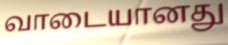
வாடையானது